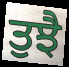
ਤੁਝੈ